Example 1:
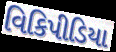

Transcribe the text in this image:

વિકિપીડિયા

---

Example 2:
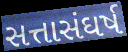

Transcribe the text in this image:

સત્તાસંઘર્ષ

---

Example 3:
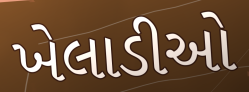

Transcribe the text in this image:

ખેલાડીઓ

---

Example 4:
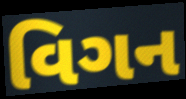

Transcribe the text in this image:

વિગન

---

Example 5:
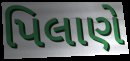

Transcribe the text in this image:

પિલાણે